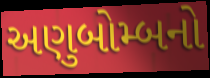
અણુબોમ્બનો